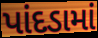
પાંદડામાં